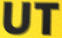
UT